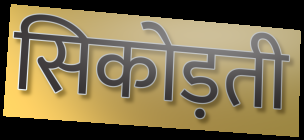
सिकोड़ती